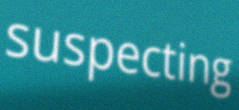
suspecting